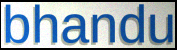
bhandu